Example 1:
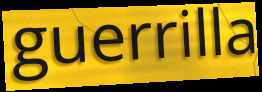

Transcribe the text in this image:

guerrilla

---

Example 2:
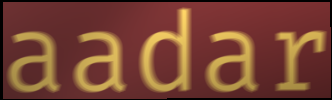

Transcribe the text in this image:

aadar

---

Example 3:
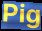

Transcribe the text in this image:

Pig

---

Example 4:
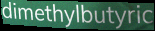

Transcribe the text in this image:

dimethylbutyric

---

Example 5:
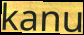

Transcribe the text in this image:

kanu